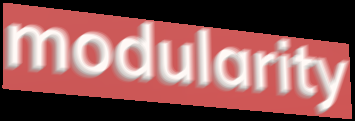
modularity